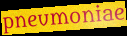
pneumoniae